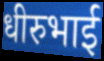
धीरुभाई